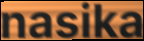
nasika